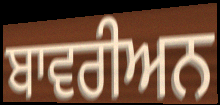
ਬਾਵਰੀਅਨ